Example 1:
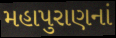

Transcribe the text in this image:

મહાપુરાણનાં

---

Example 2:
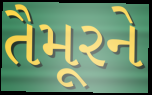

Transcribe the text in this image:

તૈમૂરને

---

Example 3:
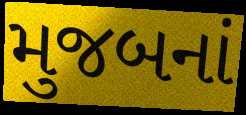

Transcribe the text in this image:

મુજબનાં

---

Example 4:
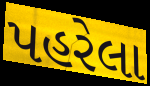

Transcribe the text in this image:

પહરેલા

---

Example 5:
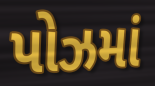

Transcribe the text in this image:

પોઝમાં